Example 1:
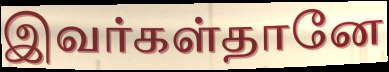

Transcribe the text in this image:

இவர்கள்தானே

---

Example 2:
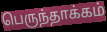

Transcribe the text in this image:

பெருந்தாக்கம்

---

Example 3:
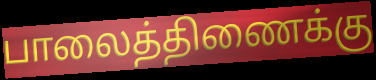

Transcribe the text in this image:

பாலைத்திணைக்கு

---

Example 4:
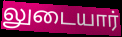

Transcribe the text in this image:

லுடையார்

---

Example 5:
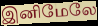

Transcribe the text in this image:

இனிமேலே